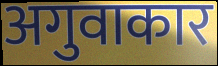
अगुवाकार